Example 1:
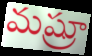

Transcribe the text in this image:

మష్రూ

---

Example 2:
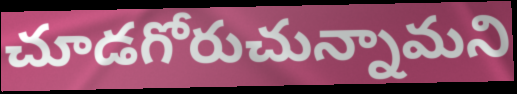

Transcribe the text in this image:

చూడగోరుచున్నామని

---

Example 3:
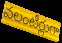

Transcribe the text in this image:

వలంటీర్లుగా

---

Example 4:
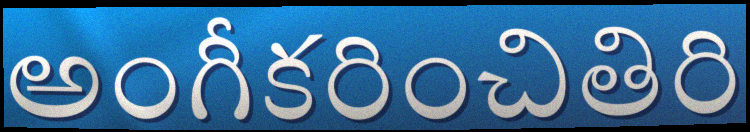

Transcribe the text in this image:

అంగీకరించితిరి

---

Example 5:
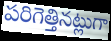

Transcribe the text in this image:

పరిగెత్తినట్లుగా